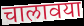
चालावया